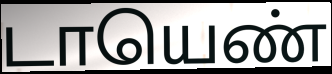
டாயெண்